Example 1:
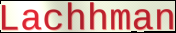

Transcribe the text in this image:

Lachhman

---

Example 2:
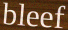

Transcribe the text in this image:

bleef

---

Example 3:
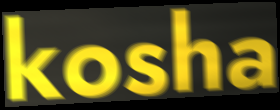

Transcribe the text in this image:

kosha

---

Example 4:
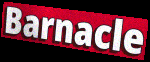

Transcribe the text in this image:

Barnacle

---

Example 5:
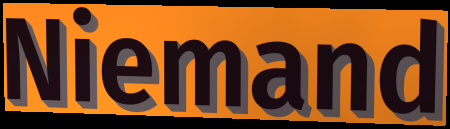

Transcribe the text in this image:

Niemand